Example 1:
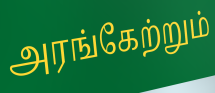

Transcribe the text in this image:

அரங்கேற்றும்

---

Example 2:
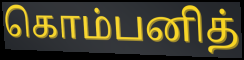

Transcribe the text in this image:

கொம்பனித்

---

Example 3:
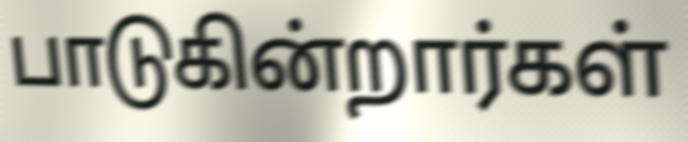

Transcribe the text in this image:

பாடுகின்றார்கள்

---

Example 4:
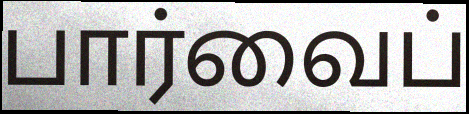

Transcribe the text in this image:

பார்வைப்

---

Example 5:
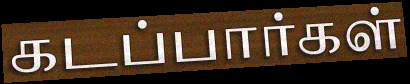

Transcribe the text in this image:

கடப்பார்கள்